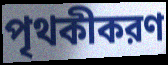
পৃথকীকরণ